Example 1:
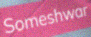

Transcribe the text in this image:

Someshwar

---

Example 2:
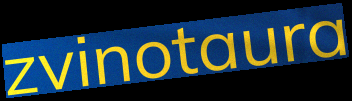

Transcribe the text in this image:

zvinotaura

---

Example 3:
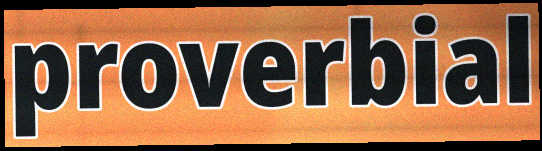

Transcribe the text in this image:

proverbial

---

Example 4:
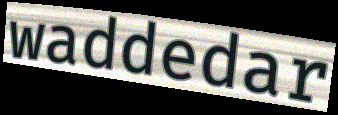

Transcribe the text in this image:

waddedar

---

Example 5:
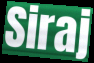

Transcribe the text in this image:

Siraj